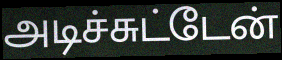
அடிச்சுட்டேன்